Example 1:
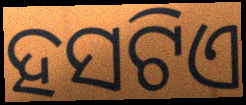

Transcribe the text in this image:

ହସଟିଏ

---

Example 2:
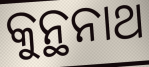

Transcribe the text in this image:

କୁନ୍ଥନାଥ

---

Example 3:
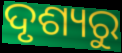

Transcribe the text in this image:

ଦୃଶ୍ୟରୁ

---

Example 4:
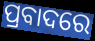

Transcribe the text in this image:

ପ୍ରବାଦରେ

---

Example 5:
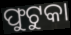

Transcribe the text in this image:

ଫୁଟୁକା